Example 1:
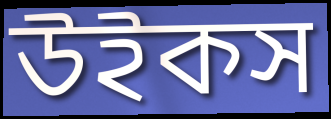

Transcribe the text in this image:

উইকস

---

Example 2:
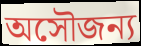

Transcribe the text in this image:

অসৌজন্য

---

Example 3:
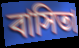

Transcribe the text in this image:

বাসিতা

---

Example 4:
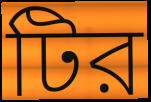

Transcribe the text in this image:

টির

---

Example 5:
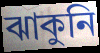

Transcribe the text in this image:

ঝাকুনি